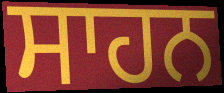
ਸਾਹਨ